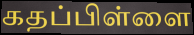
கதப்பிள்ளை